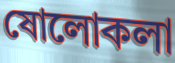
ষোলোকলা